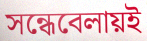
সন্ধেবেলায়ই